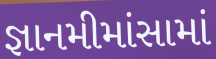
જ્ઞાનમીમાંસામાં